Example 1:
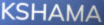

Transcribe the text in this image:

KSHAMA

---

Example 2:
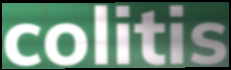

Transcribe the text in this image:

colitis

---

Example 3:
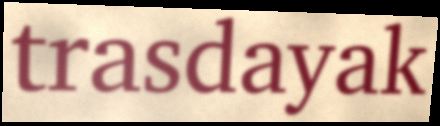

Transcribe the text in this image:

trasdayak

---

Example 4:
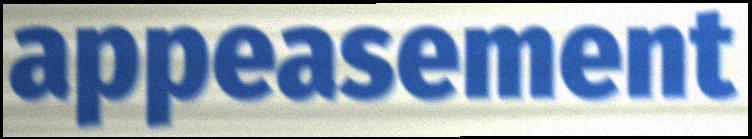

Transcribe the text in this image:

appeasement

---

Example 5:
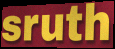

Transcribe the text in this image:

sruth